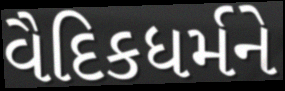
વૈદિકધર્મને